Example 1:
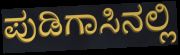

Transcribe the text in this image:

ಪುಡಿಗಾಸಿನಲ್ಲಿ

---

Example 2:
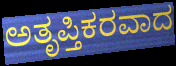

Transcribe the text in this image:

ಅತೃಪ್ತಿಕರವಾದ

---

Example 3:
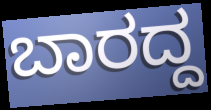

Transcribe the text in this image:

ಬಾರದ್ದ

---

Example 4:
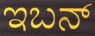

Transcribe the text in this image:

ಇಬನ್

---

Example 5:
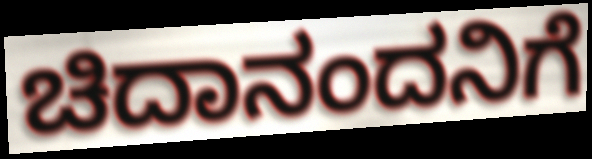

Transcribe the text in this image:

ಚಿದಾನಂದನಿಗೆ